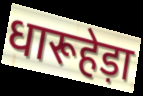
धारूहेड़ा